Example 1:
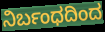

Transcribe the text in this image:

ನಿರ್ಬಂಧದಿಂದ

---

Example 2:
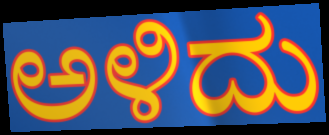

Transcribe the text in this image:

ಅಳಿದು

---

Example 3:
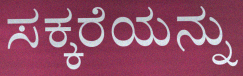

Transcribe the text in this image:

ಸಕ್ಕರೆಯನ್ನು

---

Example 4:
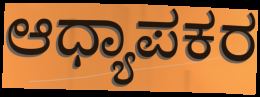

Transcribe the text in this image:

ಆಧ್ಯಾಪಕರ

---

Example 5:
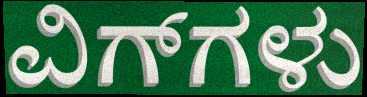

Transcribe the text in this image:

ವಿಗ್‌ಗಳು